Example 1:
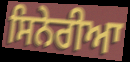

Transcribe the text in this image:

ਸਿਨੇਰੀਆ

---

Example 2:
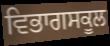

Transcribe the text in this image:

ਵਿਭਾਗਸਕੂਲ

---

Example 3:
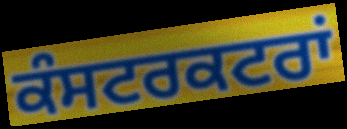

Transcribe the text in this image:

ਕੰਸਟਰਕਟਰਾਂ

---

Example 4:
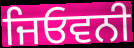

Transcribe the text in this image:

ਜਿਓਵਨੀ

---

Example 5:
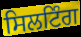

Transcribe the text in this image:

ਸਿਲਟਿੰਗ